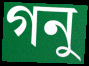
গনু